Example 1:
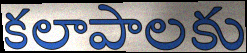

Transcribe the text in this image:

కలాపాలకు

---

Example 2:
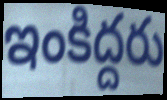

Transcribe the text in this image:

ఇంకిద్దరు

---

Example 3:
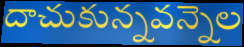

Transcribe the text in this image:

దాచుకున్నవన్నెల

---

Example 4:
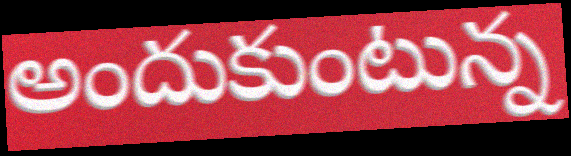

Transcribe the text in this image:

అందుకుంటున్న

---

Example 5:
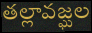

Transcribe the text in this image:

తల్లావజ్ఘల